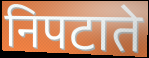
निपटाते